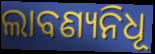
ଲାବଣ୍ୟନିଧୂ